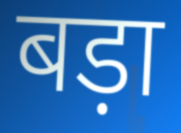
बड़ा